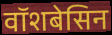
वॉशबेसिन